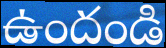
ఉందండి